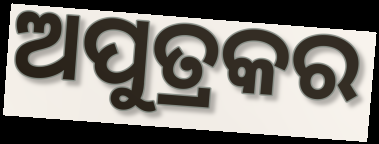
ଅପୁତ୍ରକର